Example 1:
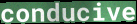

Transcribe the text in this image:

conducive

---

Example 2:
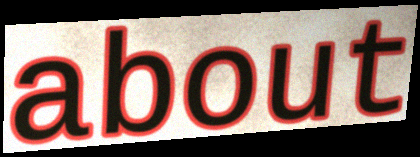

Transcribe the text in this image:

about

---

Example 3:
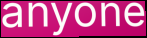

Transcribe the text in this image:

anyone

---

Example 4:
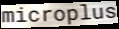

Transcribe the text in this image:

microplus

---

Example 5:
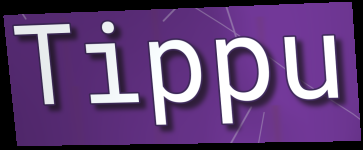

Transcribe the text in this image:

Tippu